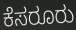
ಕೆಸರೂರು